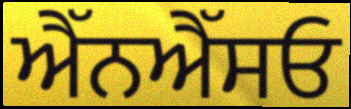
ਐੱਨਐੱਸਓ